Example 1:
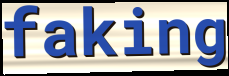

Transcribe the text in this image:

faking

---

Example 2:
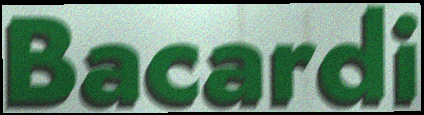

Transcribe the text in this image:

Bacardi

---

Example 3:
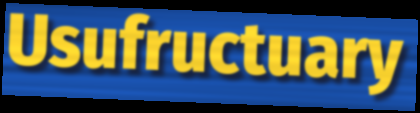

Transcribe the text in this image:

Usufructuary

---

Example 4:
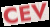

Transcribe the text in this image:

CEV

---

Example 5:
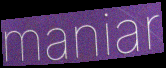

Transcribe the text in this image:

maniar